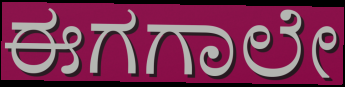
ಈಗಗಾಲೇ